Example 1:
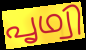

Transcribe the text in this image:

പൃഥ്വി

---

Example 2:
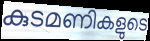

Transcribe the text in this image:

കുടമണികളുടെ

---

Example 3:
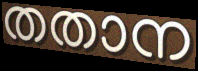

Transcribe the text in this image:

തതാന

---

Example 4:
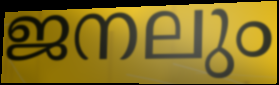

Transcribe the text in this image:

ജനലും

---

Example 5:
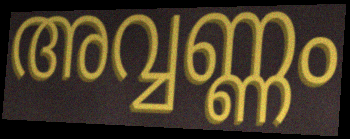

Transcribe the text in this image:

അവ്വണ്ണം